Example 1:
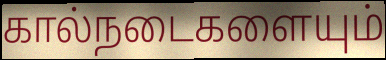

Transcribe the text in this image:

கால்நடைகளையும்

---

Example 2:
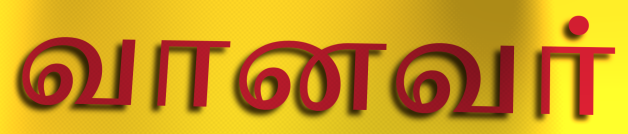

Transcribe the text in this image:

வானவர்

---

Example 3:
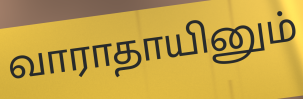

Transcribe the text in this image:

வாராதாயினும்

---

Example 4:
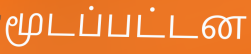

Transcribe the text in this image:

மூடப்பட்டன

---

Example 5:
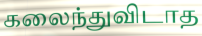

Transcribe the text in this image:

கலைந்துவிடாத